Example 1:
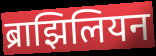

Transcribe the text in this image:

ब्राझिलियन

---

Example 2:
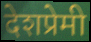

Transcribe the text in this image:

देशप्रेमी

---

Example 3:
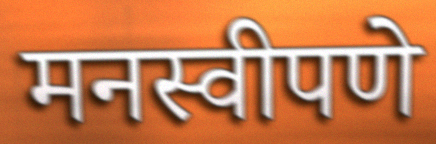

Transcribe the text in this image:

मनस्वीपणे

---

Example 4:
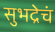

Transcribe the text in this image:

सुभद्रेचं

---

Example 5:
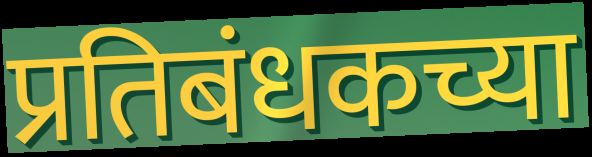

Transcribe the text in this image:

प्रतिबंधकच्या